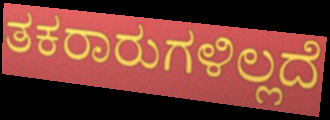
ತಕರಾರುಗಳಿಲ್ಲದೆ